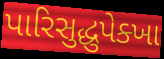
પારિસુદ્ધુપેક્ખા